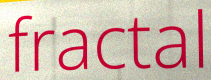
fractal